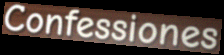
Confessiones